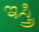
ಇಸ್ತ್ರಿ